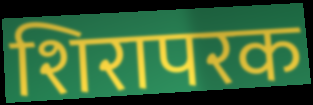
शिरापरक